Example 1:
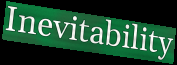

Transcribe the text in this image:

Inevitability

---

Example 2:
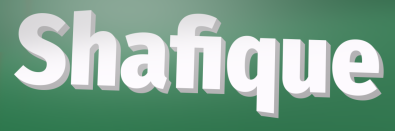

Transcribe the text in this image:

Shafique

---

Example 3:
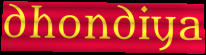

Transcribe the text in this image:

dhondiya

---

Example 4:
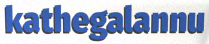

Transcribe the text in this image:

kathegalannu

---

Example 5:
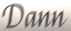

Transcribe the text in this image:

Dann